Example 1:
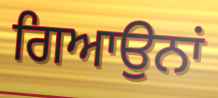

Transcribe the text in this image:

ਗਿਆਉਨਾਂ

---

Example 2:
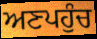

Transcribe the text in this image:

ਅਣਪਹੁੰਚ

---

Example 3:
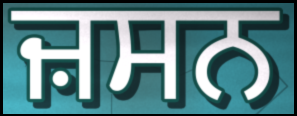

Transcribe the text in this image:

ਜ਼ਸਨ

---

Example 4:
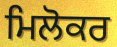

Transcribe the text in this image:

ਮਿਲੋਕਰ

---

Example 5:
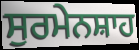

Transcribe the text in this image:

ਸੁਰਮੇਨਸ਼ਾਹ